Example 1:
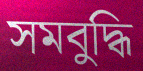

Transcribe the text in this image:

সমবুদ্ধি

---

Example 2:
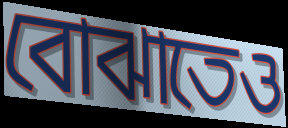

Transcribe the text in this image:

বোঝাতেও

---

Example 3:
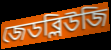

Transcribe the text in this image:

জেডব্লিউজি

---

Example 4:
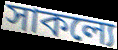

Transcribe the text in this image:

সাকল্যে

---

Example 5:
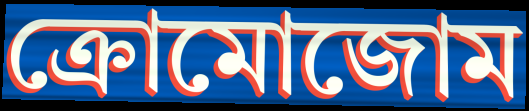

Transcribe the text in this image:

ক্রোমোজোম